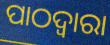
ପାଠଦ୍ଵାରା